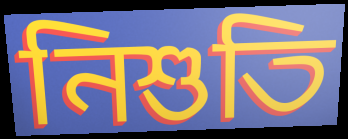
নিশুতি